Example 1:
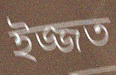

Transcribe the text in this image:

ইজ্জত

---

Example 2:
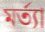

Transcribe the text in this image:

মর্ত্যা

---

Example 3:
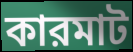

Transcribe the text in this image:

কারমাট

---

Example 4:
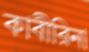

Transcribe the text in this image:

কাবীরিনা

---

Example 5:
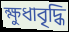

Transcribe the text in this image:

ক্ষুধাবৃদ্ধি